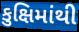
કુક્ષિમાંથી